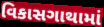
વિકાસગાથામાં